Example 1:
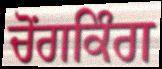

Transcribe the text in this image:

ਚੋਂਗਕਿੰਗ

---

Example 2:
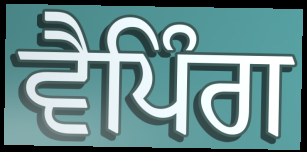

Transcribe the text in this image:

ਵੈਪਿੰਗ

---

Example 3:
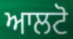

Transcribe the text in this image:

ਆਲਟੋ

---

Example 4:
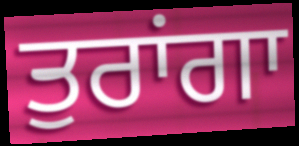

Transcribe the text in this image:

ਤੁਰਾਂਗਾ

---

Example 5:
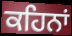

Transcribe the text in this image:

ਕਹਿਨਾਂ